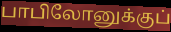
பாபிலோனுக்குப்